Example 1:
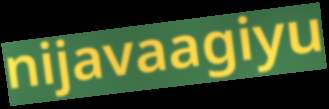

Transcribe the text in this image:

nijavaagiyu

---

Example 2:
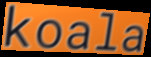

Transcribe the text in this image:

koala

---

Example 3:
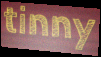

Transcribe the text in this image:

tinny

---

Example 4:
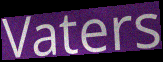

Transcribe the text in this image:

Vaters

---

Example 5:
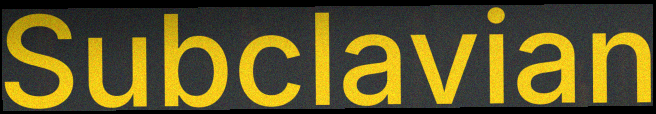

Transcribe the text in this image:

Subclavian